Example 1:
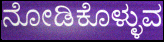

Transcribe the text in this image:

ನೋಡಿಕೊಳ್ಳುವ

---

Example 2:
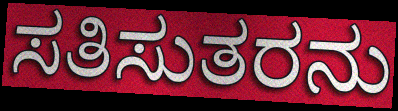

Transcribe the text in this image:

ಸತಿಸುತರನು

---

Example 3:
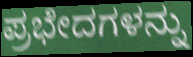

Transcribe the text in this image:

ಪ್ರಭೇದಗಳನ್ನು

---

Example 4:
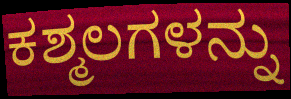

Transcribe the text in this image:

ಕಶ್ಮಲಗಳನ್ನು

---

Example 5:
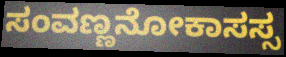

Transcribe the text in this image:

ಸಂವಣ್ಣನೋಕಾಸಸ್ಸ